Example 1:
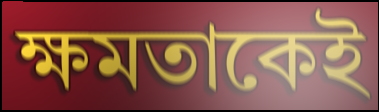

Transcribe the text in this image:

ক্ষমতাকেই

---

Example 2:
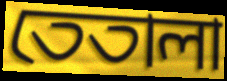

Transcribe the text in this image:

তেতালা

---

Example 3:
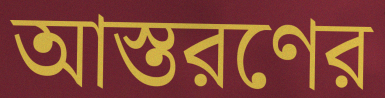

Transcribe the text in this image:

আস্তরণের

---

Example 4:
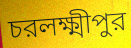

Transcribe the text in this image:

চরলক্ষ্মীপুর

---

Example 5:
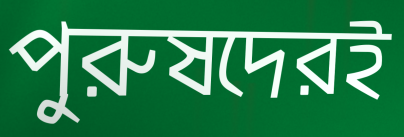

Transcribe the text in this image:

পুরুষদেরই